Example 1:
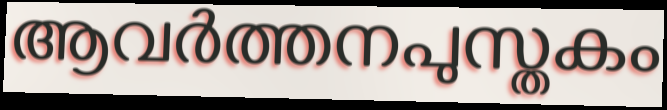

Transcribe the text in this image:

ആവർത്തനപുസ്തകം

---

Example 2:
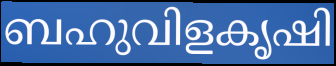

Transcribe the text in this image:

ബഹുവിളകൃഷി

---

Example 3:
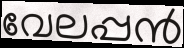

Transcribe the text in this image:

വേലപ്പൻ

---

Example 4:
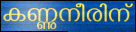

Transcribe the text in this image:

കണ്ണുനീരിന്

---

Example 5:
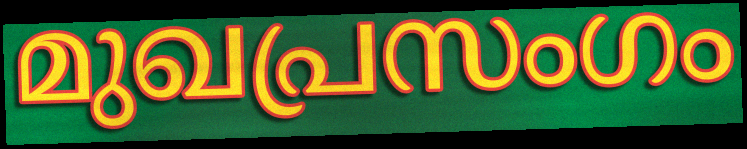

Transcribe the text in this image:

മുഖപ്രസംഗം